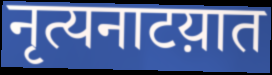
नृत्यनाटय़ात